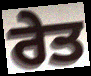
ਰੇਤ